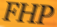
FHP